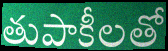
తుపాకీలతో